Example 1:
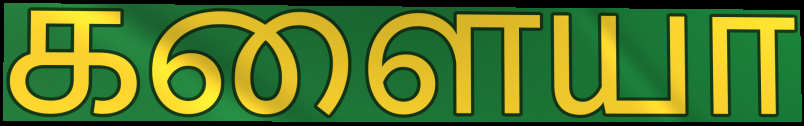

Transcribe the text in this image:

களையா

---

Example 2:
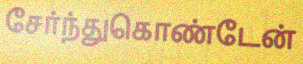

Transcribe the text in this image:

சேர்ந்துகொண்டேன்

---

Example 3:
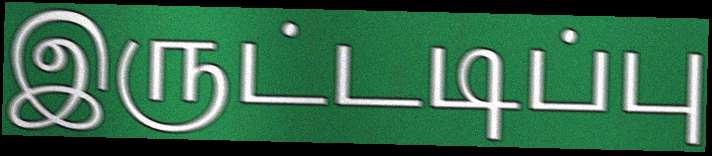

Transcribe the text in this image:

இருட்டடிப்பு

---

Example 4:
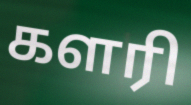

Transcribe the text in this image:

களரி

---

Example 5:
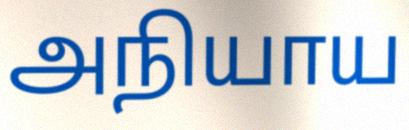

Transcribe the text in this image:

அநியாய